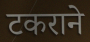
टकराने